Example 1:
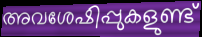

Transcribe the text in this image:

അവശേഷിപ്പുകളുണ്ട്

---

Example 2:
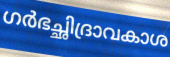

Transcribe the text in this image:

ഗർഭച്ഛിദ്രാവകാശ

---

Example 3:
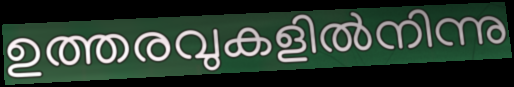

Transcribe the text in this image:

ഉത്തരവുകളിൽനിന്നു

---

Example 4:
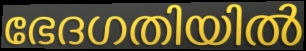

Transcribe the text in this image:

ഭേദഗതിയിൽ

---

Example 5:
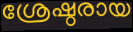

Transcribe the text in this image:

ശ്രേഷ്ഠരായ